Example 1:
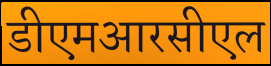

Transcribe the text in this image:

डीएमआरसीएल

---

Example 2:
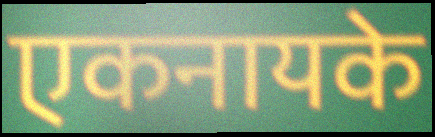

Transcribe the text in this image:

एकनायके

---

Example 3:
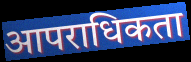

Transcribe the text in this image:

आपराधिकता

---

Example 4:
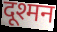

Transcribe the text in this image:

दूश्मन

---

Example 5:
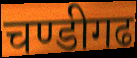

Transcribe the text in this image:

चण्डीगढ